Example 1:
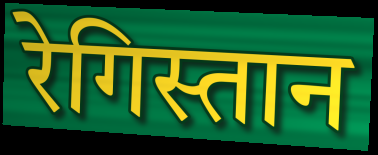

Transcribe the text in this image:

रेगिस्‍तान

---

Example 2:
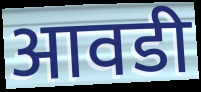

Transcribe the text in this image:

आवडी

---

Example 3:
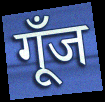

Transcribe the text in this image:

गूँज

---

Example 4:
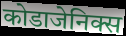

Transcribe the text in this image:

कोडाजेनिक्स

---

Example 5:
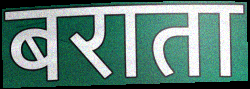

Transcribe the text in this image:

बराता